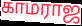
காமராஜ